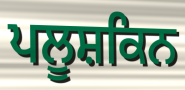
ਪਲੂਸ਼ਕਿਨ